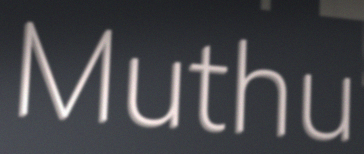
Muthu